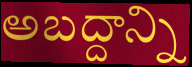
అబద్దాన్ని